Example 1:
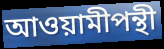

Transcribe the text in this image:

আওয়ামীপন্থী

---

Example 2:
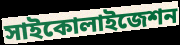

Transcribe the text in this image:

সাইকোলাইজেশন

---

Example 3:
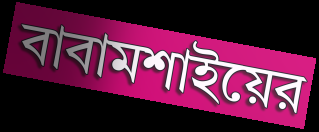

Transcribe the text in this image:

বাবামশাইয়ের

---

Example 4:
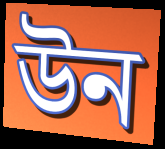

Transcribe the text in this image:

উন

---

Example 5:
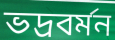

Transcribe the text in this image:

ভদ্রবর্মন